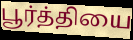
பூர்த்தியை